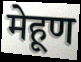
मेहूण